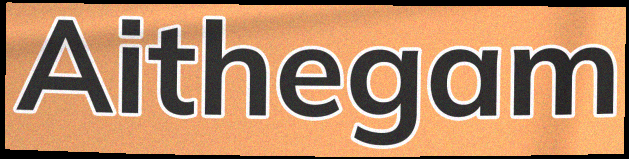
Aithegam